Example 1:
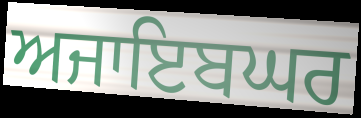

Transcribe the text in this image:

ਅਜਾਇਬਘਰ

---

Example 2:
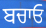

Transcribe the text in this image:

ਬਚਾਓ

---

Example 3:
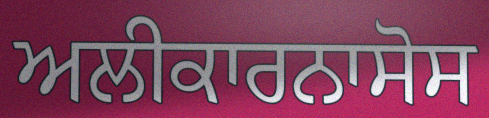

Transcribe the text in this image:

ਅਲੀਕਾਰਨਾਸੋਸ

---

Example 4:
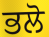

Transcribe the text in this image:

ਭਲੋ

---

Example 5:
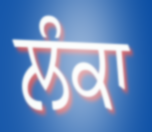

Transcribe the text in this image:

ਲੰਕਾ